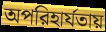
অপরিহার্যতায়